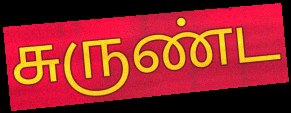
சுருண்ட